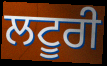
ਲਟੂਰੀ